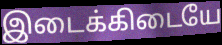
இடைக்கிடையே